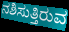
ನಶಿಸುತ್ತಿರುವ